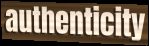
authenticity